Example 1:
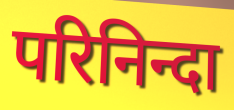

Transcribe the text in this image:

परिनिन्दा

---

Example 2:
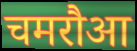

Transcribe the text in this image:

चमरौआ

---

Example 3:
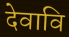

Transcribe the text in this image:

देवावि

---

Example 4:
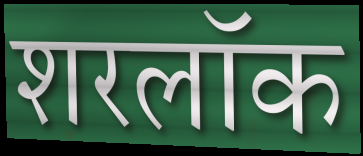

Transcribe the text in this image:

शरलॉक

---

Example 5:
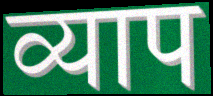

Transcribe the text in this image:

व्याप